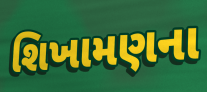
શિખામણના